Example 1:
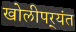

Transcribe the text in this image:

खोलीपर्यंत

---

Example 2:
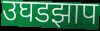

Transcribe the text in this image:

उघडझाप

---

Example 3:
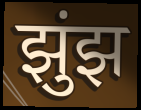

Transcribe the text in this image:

झुंझ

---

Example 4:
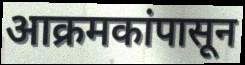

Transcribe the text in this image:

आक्रमकांपासून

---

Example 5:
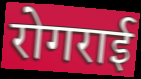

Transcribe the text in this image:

रोगराई